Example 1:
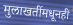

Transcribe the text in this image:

मुलाखतींमधूनही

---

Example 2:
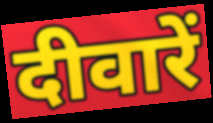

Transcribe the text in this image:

दीवारें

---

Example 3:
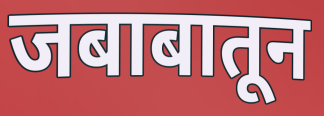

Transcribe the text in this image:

जबाबातून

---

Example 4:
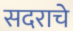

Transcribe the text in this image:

सदराचे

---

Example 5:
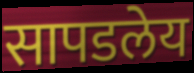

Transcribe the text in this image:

सापडलेय